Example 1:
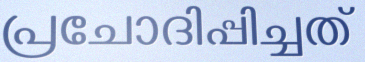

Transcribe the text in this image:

പ്രചോദിപ്പിച്ചത്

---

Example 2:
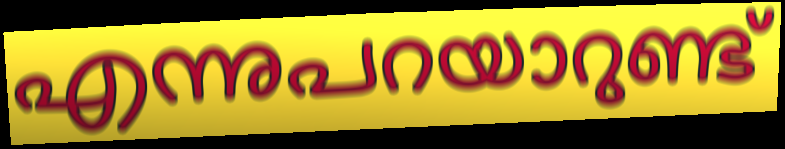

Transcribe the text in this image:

എന്നുപറയാറുണ്ട്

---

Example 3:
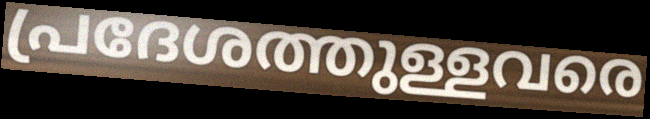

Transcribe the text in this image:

പ്രദേശത്തുള്ളവരെ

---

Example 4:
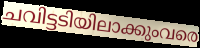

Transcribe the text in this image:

ചവിട്ടടിയിലാക്കുംവരെ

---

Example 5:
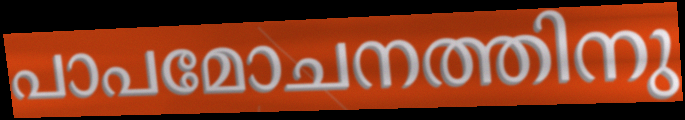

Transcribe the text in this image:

പാപമോചനത്തിനു